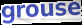
grouse